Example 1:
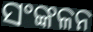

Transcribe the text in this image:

ସଂଙ୍କଳନ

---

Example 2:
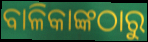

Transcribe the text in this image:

ବାଳିକାଙ୍କଠାରୁ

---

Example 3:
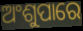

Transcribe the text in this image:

ଅଂଶୁପାରେ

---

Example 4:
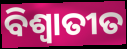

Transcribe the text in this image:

ବିଶ୍ଵାତୀତ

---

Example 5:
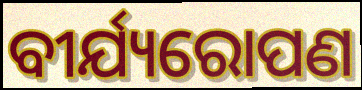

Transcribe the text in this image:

ବୀର୍ଯ୍ୟରୋପଣ